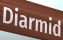
Diarmid